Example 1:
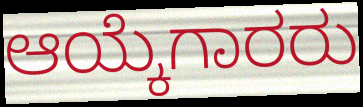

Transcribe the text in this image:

ಆಯ್ಕೆಗಾರರು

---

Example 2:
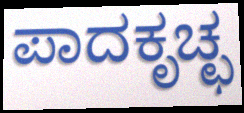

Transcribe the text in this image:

ಪಾದಕೃಚ್ಛ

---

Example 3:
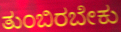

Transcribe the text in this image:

ತುಂಬಿರಬೇಕು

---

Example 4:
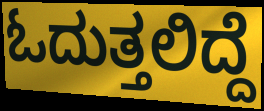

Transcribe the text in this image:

ಓದುತ್ತಲಿದ್ದೆ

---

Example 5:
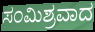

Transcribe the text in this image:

ಸಂಮಿಶ್ರವಾದ